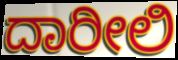
ದಾರೀಲಿ